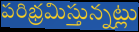
పరిభ్రమిస్తున్నట్లు